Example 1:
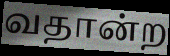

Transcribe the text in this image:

வதான்ற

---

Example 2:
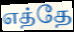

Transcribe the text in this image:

எத்தே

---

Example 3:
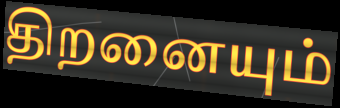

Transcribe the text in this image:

திறனையும்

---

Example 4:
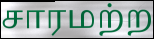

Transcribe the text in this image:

சாரமற்ற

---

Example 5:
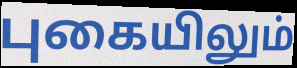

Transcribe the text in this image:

புகையிலும்